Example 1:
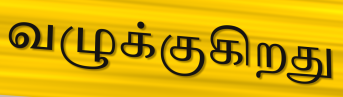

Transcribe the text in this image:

வழுக்குகிறது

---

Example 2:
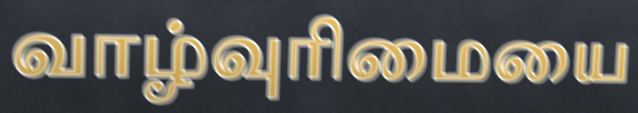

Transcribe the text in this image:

வாழ்வுரிமையை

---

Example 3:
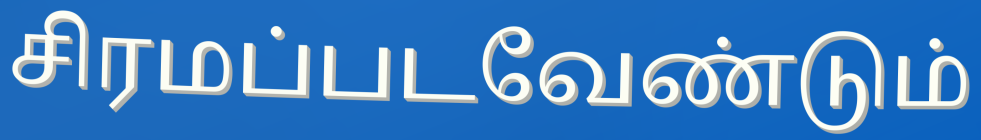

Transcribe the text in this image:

சிரமப்படவேண்டும்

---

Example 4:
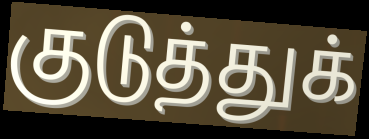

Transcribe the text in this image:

குடுத்துக்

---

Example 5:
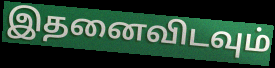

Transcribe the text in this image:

இதனைவிடவும்